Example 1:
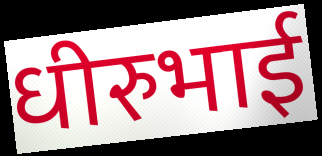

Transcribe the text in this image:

धीरुभाई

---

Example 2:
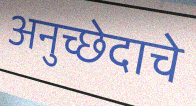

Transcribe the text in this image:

अनुच्छेदाचे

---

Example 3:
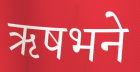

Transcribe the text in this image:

ऋषभने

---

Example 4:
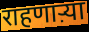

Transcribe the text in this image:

राहणाऱ्‍या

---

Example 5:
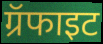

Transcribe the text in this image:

ग्रॅफाइट